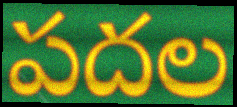
పదల